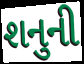
શનુની